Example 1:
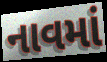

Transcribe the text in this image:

નાવમાં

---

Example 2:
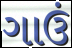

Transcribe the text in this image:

ગાઉં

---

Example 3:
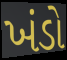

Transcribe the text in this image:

ખંડો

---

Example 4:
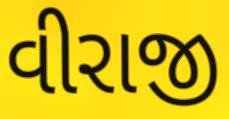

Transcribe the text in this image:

વીરાજી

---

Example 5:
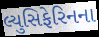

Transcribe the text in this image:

લ્યુસિફેરિનના